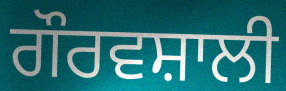
ਗੌਰਵਸ਼ਾਲੀ